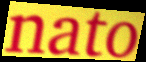
nato